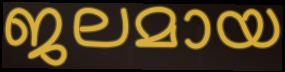
ജലമായ